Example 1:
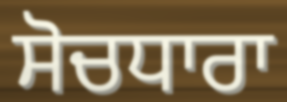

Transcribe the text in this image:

ਸੋਚਧਾਰਾ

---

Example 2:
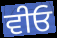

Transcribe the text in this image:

ਵੀਓ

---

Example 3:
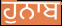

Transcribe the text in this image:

ਹੁਨਾਬ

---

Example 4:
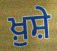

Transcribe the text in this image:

ਖ਼ੁਸ਼ੇ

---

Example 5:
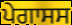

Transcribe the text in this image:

ਪੇਗਾਸਸ